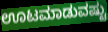
ಊಟಮಾಡುವಷ್ಟು